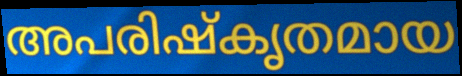
അപരിഷ്കൃതമായ